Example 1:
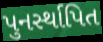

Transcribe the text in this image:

પુનર્સ્થાપિત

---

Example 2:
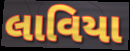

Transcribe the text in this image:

લાવિયા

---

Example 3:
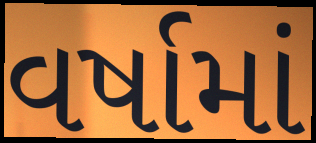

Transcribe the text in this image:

વર્ષામાં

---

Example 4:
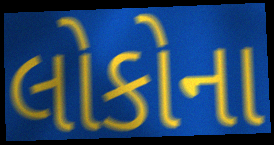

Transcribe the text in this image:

લોકોના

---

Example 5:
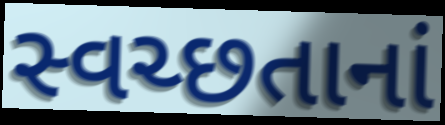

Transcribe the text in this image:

સ્વચ્છતાનાં